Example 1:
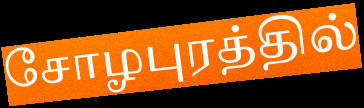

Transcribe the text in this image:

சோழபுரத்தில்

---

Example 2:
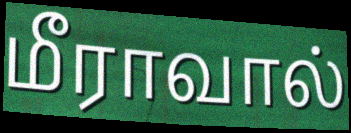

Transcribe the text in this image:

மீராவால்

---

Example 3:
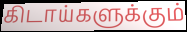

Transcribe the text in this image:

கிடாய்களுக்கும்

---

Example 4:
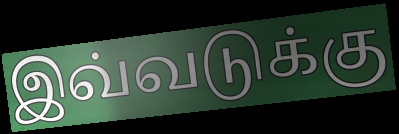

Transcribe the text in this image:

இவ்வடுக்கு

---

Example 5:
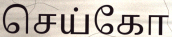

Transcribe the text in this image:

செய்கோ